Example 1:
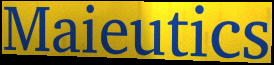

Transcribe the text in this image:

Maieutics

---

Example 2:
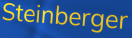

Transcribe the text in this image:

Steinberger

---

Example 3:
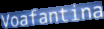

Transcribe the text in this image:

Voafantina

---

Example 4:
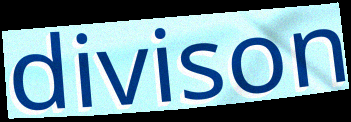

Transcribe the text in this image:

divison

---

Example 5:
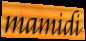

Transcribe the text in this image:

mamidi